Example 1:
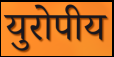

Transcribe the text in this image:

युरोपीय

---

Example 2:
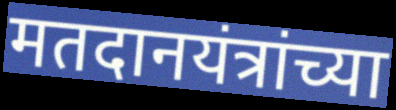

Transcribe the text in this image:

मतदानयंत्रांच्या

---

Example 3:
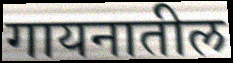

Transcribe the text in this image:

गायनातील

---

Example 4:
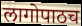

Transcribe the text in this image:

लागोपाठच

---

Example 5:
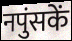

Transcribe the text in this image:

नपुंसकें